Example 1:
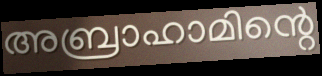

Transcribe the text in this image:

അബ്രാഹാമിന്റെ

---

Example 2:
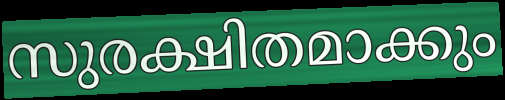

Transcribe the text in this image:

സുരക്ഷിതമാക്കും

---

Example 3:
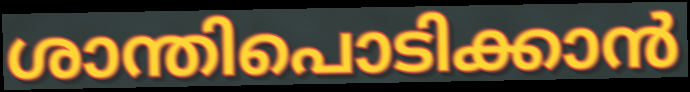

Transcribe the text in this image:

ശാന്തിപൊടിക്കാൻ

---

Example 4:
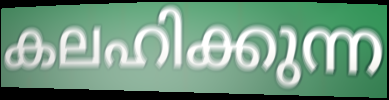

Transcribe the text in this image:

കലഹിക്കുന്ന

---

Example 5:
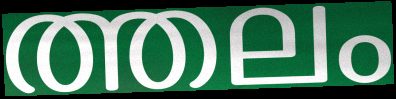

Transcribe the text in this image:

ത്തലം